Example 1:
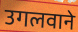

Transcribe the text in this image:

उगलवाने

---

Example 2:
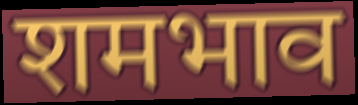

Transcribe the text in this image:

शमभाव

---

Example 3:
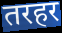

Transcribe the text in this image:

तरहर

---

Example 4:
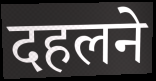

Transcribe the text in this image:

दहलने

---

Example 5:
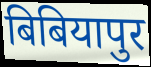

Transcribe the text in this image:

बिबियापुर